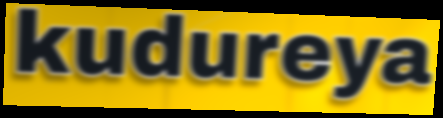
kudureya